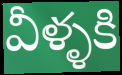
వీళ్ళకి